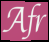
Afr